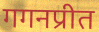
गगनप्रीत